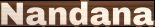
Nandana